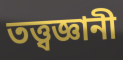
তত্ত্বজ্ঞানী